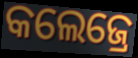
କଲେଜ୍ରେ